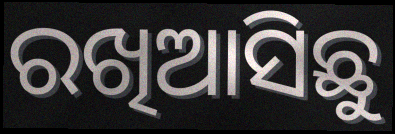
ରଖିଆସିଛୁ